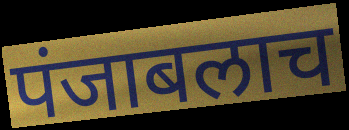
पंजाबलाच